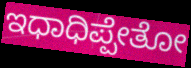
ಇಧಾಧಿಪ್ಪೇತೋ